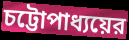
চট্টোপাধ্যয়ের